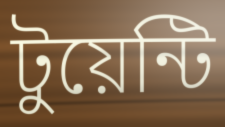
টুয়েন্টি